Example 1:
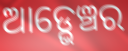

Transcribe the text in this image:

ଆଡ୍ଭେଞ୍ଚର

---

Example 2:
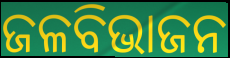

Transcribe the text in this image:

ଜଳବିଭାଜନ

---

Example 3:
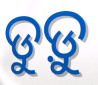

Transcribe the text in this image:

ଡୁଡ଼ୁ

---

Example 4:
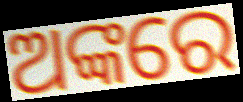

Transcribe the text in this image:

ଅଙ୍କରେ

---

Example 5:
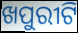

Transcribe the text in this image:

ଖପୁରୀଟି